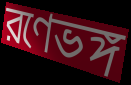
রণেভঙ্গ